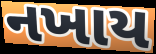
નખાય